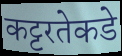
कट्टरतेकडे